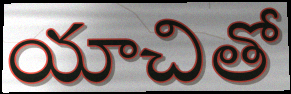
యాచితో